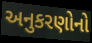
અનુકરણોનો